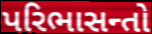
પરિભાસન્તો